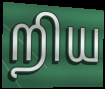
றிய